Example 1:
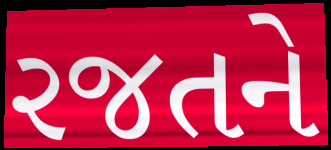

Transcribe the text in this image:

રજતને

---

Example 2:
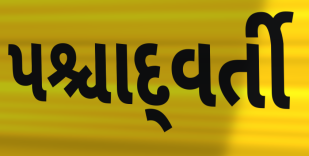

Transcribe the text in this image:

પશ્ચાદ્‌વર્તી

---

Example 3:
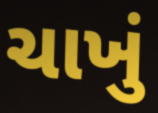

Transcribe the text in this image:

ચાખું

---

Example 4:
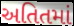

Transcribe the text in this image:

અતિતમાં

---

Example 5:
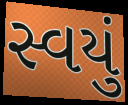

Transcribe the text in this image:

સ્વયું